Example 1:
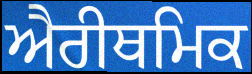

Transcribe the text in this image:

ਐਰੀਥਮਿਕ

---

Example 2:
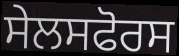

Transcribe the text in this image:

ਸੇਲਸਫੋਰਸ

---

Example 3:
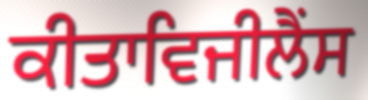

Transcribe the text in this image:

ਕੀਤਾਵਿਜੀਲੈਂਸ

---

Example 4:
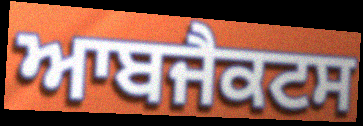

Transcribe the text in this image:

ਆਬਜੈਕਟਸ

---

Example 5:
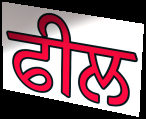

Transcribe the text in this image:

ਫੀਲ